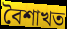
বৈশাখত